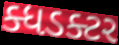
ક્ધડક્ટર